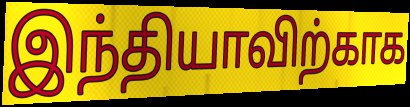
இந்தியாவிற்காக